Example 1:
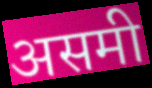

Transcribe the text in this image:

असमी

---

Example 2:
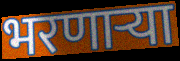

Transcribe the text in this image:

भरणाऱ्या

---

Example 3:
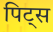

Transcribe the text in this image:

पिट्स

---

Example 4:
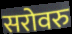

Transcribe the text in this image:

सरोवरु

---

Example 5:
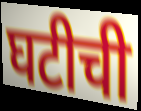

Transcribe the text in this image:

घटीची